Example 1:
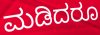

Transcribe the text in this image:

ಮಡಿದರೂ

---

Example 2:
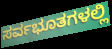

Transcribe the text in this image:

ಸರ್ವಭೂತಗಳಲ್ಲಿ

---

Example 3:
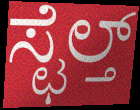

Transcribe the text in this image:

ಸ್ಟೆಲ್ತ್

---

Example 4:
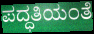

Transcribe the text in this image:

ಪದ್ಧತಿಯಂತೆ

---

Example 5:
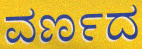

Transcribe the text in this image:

ವರ್ಣದ